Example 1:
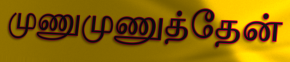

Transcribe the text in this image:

முணுமுணுத்தேன்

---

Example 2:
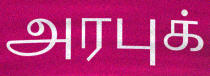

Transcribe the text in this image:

அரபுக்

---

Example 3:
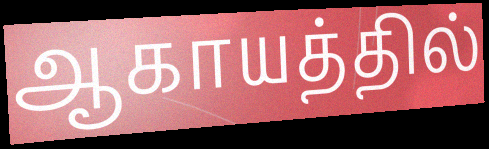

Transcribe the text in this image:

ஆகாயத்தில்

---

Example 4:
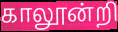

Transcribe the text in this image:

காலூன்றி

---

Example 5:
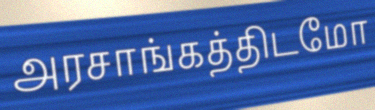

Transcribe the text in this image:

அரசாங்கத்திடமோ